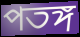
পতঙ্গ